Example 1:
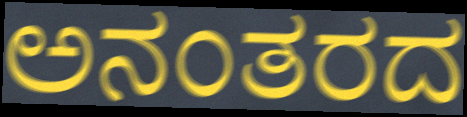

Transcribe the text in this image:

ಅನಂತರದ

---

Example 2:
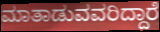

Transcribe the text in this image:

ಮಾತಾಡುವವರಿದ್ದಾರೆ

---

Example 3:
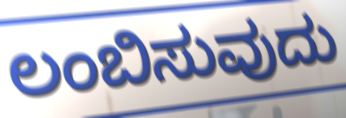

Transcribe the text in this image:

ಲಂಬಿಸುವುದು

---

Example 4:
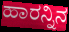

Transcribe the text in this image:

ಹಾರನ್ನಿನ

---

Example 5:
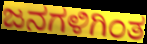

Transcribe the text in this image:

ಜನಗಳಿಗಿಂತ